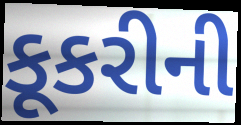
કૂકરીની